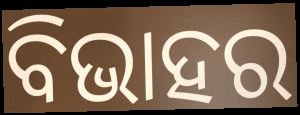
ବିଭାହର